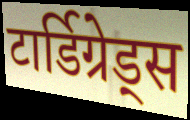
टार्डिग्रेड्स